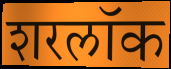
शरलॉक